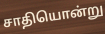
சாதியொன்று